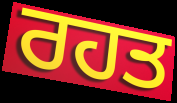
ਰਹਤ